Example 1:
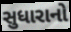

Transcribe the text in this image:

સુધારાનો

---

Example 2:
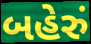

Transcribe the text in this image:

બહેરું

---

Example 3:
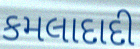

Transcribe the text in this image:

કમલાદાદી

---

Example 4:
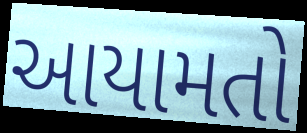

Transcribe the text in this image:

આયામતો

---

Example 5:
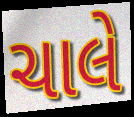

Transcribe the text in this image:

ચાલે